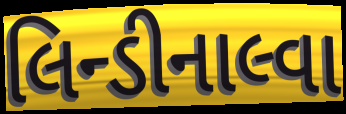
લિન્ડીનાલ્વા